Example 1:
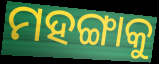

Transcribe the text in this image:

ମହଙ୍ଗାକୁ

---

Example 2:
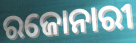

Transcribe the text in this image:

ରଜୋନାରୀ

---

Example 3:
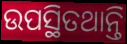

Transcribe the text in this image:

ଉପସ୍ଥିତଥାନ୍ତି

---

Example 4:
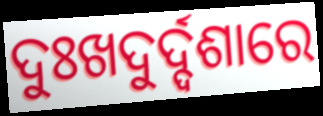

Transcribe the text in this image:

ଦୁଃଖଦୁର୍ଦ୍ଦଶାରେ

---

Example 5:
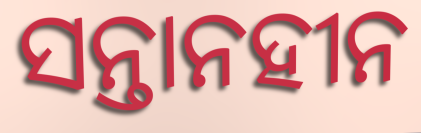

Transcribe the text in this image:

ସନ୍ତାନହୀନ